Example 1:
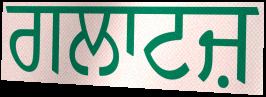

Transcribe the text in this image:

ਗਲਾਟਜ਼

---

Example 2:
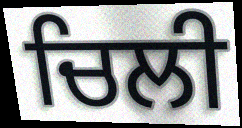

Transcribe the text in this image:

ਚਿਲੀ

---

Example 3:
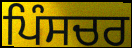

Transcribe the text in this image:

ਪਿੰਸਚਰ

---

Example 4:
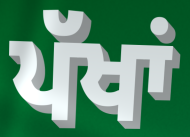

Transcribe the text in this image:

ਪੱਖਾਂ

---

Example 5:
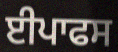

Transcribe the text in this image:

ਈਪਾਫਸ